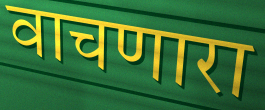
वाचणारा